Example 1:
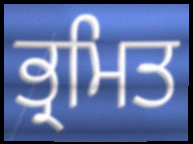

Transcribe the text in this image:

ਭ੍ਰਮਿਤ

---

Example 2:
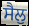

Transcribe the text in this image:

ਸੈਲੁ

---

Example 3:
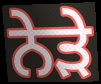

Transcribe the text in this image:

ਨੇਡ਼ੇ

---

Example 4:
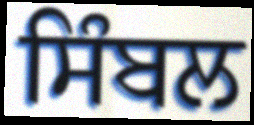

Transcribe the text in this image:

ਸਿੰਬਲ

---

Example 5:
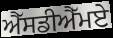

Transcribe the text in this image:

ਐੱਸਡੀਐੱਮਏ